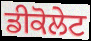
ਡੀਕੋਲੇਟ